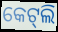
କେଟ୍‌ଲି